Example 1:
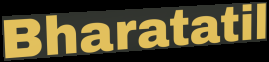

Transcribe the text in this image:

Bharatatil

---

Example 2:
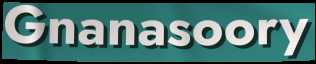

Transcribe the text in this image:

Gnanasoory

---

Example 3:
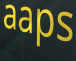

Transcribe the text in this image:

aaps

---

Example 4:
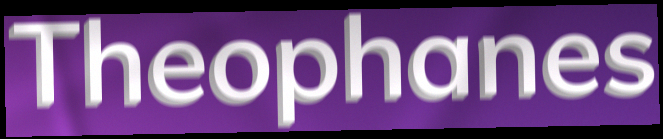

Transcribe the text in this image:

Theophanes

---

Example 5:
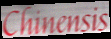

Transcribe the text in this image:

Chinensis